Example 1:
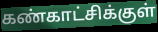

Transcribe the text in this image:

கண்காட்சிக்குள்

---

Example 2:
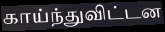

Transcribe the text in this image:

காய்ந்துவிட்டன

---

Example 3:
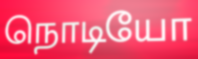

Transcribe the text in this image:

நொடியோ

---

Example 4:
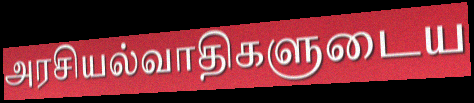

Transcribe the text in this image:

அரசியல்வாதிகளுடைய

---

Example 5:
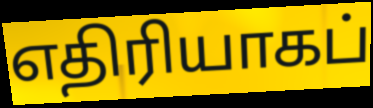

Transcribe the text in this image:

எதிரியாகப்